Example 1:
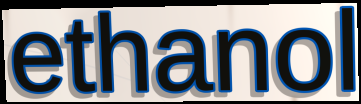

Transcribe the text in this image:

ethanol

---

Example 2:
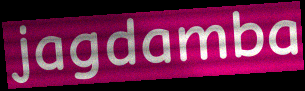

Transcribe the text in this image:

jagdamba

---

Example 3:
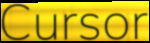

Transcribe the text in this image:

Cursor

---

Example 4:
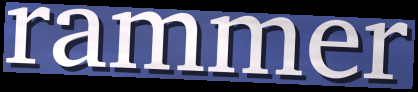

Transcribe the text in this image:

rammer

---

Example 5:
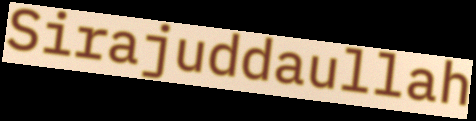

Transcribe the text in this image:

Sirajuddaullah